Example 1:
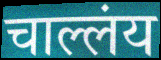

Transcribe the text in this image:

चाल्लंय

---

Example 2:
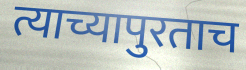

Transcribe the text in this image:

त्याच्यापुरताच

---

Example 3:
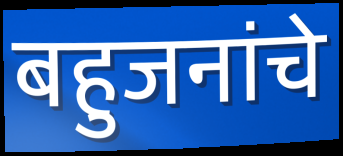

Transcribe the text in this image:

बहुजनांचे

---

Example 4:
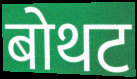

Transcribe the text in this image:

बोथट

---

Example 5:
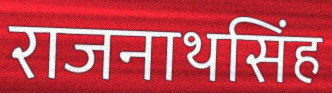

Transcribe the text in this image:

राजनाथसिंह